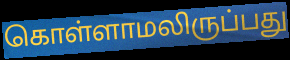
கொள்ளாமலிருப்பது